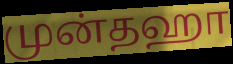
முன்தஹா